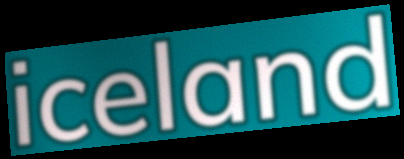
iceland